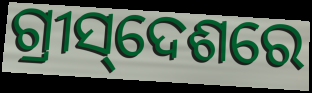
ଗ୍ରୀସ୍‌ଦେଶରେ